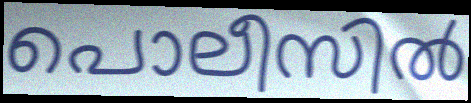
പൊലീസിൽ